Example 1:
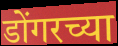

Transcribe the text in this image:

डोंगरच्या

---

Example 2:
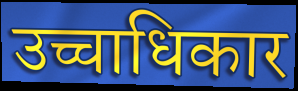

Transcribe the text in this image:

उच्चाधिकार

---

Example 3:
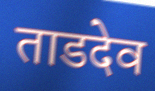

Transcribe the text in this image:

ताडदेव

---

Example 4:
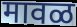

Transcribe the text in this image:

मावळ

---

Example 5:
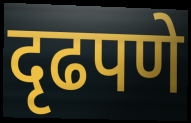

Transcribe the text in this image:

दृढपणे